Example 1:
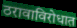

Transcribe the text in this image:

ठरावाविरोधात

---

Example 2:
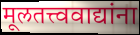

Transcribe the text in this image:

मूलतत्त्ववाद्यांना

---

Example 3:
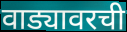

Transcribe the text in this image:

वाड्यावरची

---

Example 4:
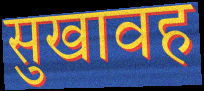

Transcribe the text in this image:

सुखावह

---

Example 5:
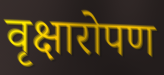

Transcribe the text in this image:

वृक्षारोपण